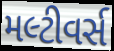
મલ્ટીવર્સ